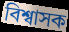
বিশ্বাসক